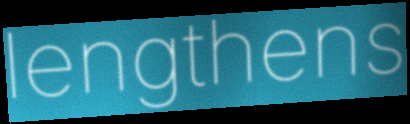
lengthens